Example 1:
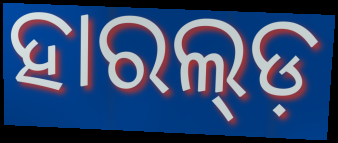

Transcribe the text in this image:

ହାରଲ୍ଡ଼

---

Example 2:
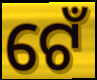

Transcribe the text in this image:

ଟେଁ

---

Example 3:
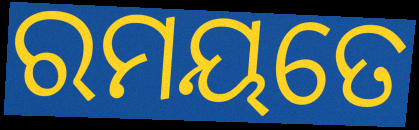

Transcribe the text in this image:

ରମୟତେ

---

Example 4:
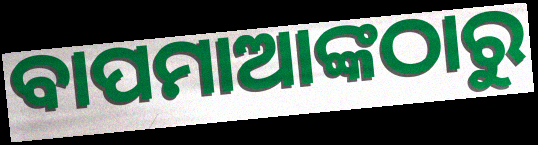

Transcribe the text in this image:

ବାପମାଆଙ୍କଠାରୁ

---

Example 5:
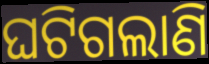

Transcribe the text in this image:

ଘଟିଗଲାଣି